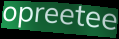
opreetee